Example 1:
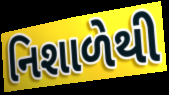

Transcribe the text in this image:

નિશાળેથી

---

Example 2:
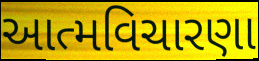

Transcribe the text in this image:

આત્મવિચારણા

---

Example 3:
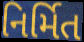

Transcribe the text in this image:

નિર્મિત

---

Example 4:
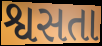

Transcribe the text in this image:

શ્વસતા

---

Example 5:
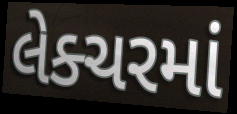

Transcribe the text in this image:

લેક્ચરમાં